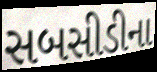
સબસીડીના